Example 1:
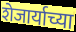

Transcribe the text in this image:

शेजार्याच्या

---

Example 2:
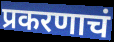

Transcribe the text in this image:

प्रकरणाचं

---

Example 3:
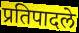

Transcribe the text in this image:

प्रतिपादले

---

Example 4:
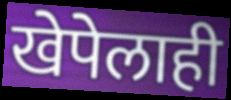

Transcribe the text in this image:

खेपेलाही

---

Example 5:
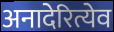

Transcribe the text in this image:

अनादेरित्येव